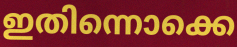
ഇതിന്നൊക്കെ